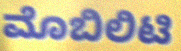
ಮೊಬಿಲಿಟಿ